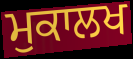
ਮੁਕਾਲਖ